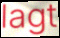
lagt